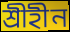
শ্রীহীন